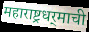
महाराष्ट्रधर्माची